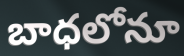
బాధలోనూ